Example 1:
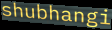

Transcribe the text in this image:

shubhangi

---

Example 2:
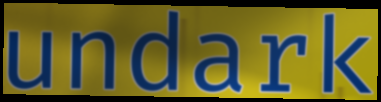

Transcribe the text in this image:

undark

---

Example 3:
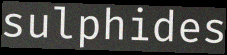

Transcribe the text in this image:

sulphides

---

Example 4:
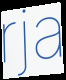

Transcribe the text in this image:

rja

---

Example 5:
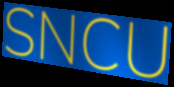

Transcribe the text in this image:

SNCU